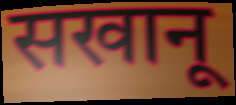
सखानू